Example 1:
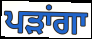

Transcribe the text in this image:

ਪੜਾਂਗਾ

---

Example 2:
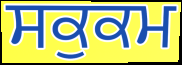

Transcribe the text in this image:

ਸਕੁਕਮ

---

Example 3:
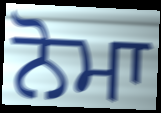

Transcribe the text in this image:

ਨੋਮਾ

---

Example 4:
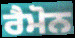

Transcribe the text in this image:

ਰੈਮੋਨ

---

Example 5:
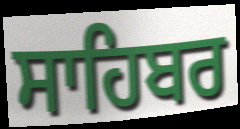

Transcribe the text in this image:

ਸਾਹਿਬਰ